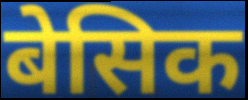
बेसिक